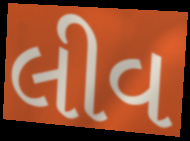
લીવ